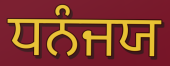
ਧਨੰਜਯ